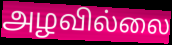
அழவில்லை